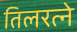
तिलरत्ने